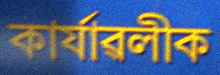
কাৰ্যাৱলীক